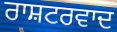
ਰਾਸ਼ਟਰਵਾਦ